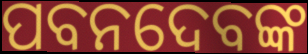
ପବନଦେବଙ୍କ